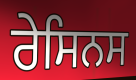
ਰੇਸਿਨਸ